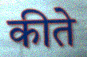
कीते